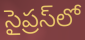
సైప్రస్‌లో